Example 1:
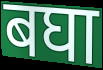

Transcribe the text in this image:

बघा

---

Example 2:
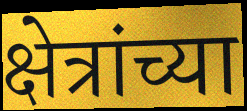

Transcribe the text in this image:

क्षेत्रांच्या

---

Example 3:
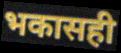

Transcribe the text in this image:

भकासही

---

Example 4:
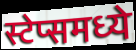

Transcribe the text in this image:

स्टेप्समध्ये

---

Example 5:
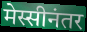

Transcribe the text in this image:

मेस्सीनंतर